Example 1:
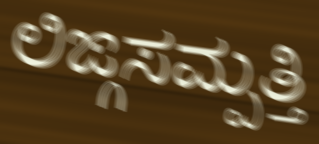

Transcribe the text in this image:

ಲಿಙ್ಗಸಮ್ಪತ್ತಿ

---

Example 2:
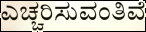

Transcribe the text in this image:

ಎಚ್ಚರಿಸುವಂತಿವೆ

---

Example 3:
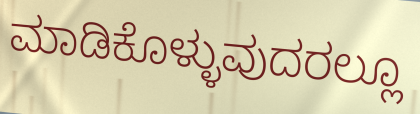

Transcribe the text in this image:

ಮಾಡಿಕೊಳ್ಳುವುದರಲ್ಲೂ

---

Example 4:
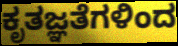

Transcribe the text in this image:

ಕೃತಜ್ಞತೆಗಳಿಂದ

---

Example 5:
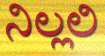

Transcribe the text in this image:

ನಿಲ್ಲಲಿ